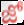
జో